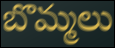
బొమ్మలు